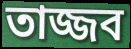
তাজ্জব